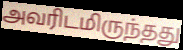
அவரிடமிருந்தது